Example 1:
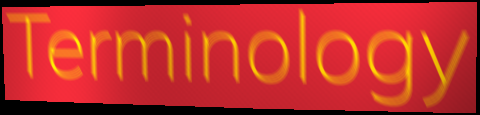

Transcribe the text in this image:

Terminology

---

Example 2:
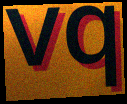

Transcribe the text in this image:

vq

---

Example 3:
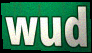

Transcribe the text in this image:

wud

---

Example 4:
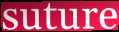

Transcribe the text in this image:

suture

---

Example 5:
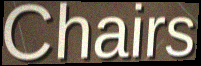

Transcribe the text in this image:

Chairs